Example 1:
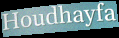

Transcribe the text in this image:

Houdhayfa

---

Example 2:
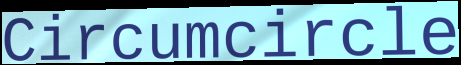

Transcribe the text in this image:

Circumcircle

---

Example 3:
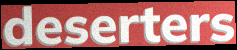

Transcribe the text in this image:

deserters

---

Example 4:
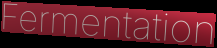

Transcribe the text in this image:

Fermentation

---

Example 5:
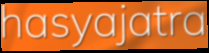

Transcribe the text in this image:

hasyajatra